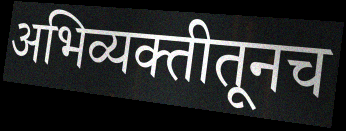
अभिव्यक्तीतूनच